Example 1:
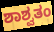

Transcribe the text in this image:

ಶಾಶ್ವತಂ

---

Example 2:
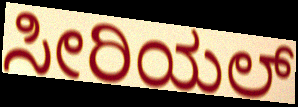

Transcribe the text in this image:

ಸೀರಿಯಲ್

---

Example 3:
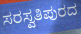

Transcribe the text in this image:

ಸರಸ್ವತಿಪುರದ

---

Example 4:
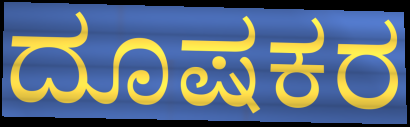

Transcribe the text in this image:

ದೂಷಕರ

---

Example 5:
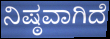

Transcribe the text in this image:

ನಿಷ್ಠವಾಗಿದೆ